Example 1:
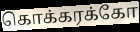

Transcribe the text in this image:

கொக்கரக்கோ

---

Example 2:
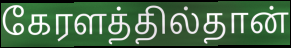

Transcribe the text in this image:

கேரளத்தில்தான்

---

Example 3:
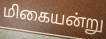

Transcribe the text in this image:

மிகையன்று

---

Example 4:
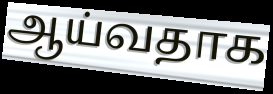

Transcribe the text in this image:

ஆய்வதாக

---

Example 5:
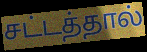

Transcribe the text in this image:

சட்டத்தால்